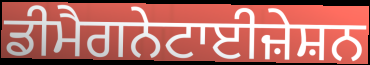
ਡੀਮੈਗਨੇਟਾਈਜ਼ੇਸ਼ਨ